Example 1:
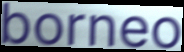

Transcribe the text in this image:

borneo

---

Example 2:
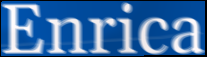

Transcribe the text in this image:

Enrica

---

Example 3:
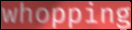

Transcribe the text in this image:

whopping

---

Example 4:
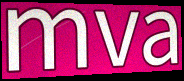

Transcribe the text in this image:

mva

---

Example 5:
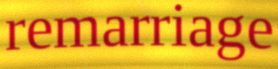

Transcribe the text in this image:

remarriage